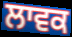
ਲਾਵਕ